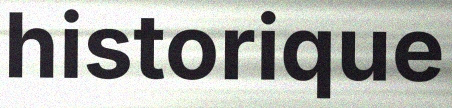
historique